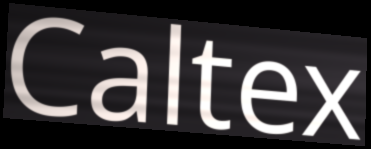
Caltex